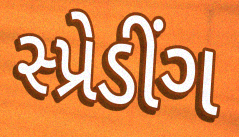
સ્પ્રેડીંગ